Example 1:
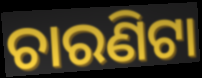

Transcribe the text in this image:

ଚାରଣିଟା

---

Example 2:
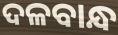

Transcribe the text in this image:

ଦଳବାନ୍ଧ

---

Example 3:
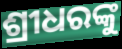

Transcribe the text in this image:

ଶ୍ରୀଧରଙ୍କୁ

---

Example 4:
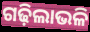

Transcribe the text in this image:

ଗଢ଼ିଲାଭଳି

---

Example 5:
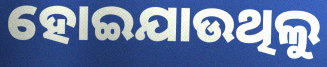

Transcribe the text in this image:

ହୋଇଯାଉଥିଲୁ